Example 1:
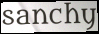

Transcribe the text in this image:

sanchy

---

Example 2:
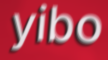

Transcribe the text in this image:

yibo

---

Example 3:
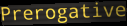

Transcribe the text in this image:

Prerogative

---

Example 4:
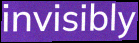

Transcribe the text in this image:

invisibly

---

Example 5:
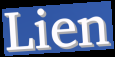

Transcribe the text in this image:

Lien